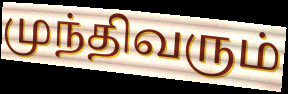
முந்திவரும்